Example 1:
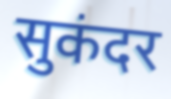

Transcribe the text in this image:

सुकंदर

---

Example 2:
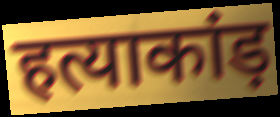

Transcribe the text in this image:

हत्याकांड़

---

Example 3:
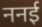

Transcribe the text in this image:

ननई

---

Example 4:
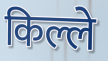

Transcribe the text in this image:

किल्ले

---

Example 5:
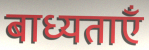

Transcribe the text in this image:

बाध्यताएँ